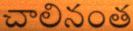
చాలినంత